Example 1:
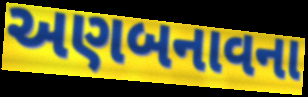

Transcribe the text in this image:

અણબનાવના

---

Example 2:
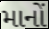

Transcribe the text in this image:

માનોં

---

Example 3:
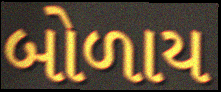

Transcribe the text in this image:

બોળાય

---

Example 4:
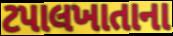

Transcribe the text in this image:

ટપાલખાતાના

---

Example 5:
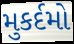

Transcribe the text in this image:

મુકર્દમો